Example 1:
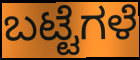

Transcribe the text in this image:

ಬಟ್ಟೆಗಳೆ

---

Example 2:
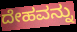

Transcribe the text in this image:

ದೇಹವನ್ನು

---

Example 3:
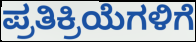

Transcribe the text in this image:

ಪ್ರತಿಕ್ರಿಯೆಗಳಿಗೆ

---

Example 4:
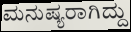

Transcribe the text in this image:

ಮನುಷ್ಯರಾಗಿದ್ದು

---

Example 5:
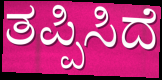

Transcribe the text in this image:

ತಪ್ಪಿಸಿದೆ